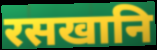
रसखानि